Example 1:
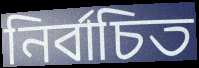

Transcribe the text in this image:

নিৰ্বাচিত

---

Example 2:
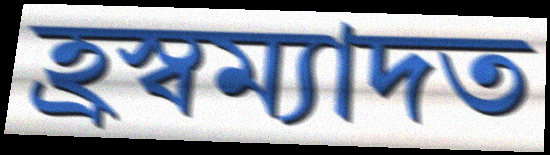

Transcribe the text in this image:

হ্ৰস্বম্যাদত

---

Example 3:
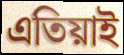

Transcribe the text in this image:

এতিয়াই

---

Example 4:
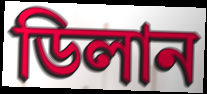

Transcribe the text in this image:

ডিলান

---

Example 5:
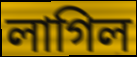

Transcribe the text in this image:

লাগিল